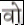
वो